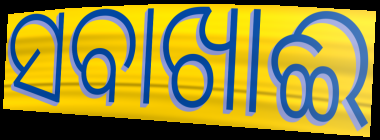
ସବାଖାଈ